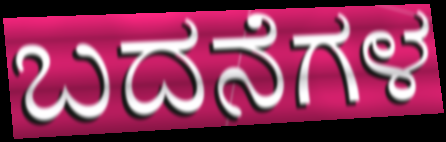
ಬದನೆಗಳ